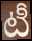
టీ